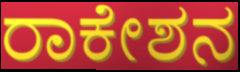
ರಾಕೇಶನ